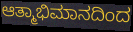
ಆತ್ಮಾಭಿಮಾನದಿಂದ